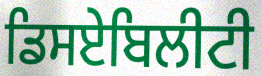
ਡਿਸਏਬਿਲੀਟੀ